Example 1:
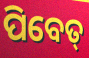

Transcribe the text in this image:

ପିବେତ୍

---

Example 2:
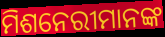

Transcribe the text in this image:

ମିଶନେରୀମାନଙ୍କ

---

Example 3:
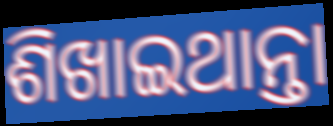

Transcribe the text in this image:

ଶିଖାଇଥାନ୍ତା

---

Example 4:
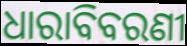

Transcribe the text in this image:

ଧାରାବିବରଣୀ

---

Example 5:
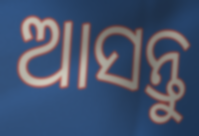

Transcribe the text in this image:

ଆସନ୍ତୁ